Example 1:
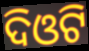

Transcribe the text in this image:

ଦିଓଟି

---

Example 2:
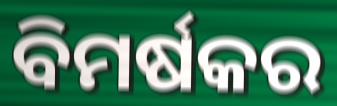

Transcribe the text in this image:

ବିମର୍ଷକର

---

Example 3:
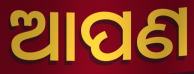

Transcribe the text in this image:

ଆପଣ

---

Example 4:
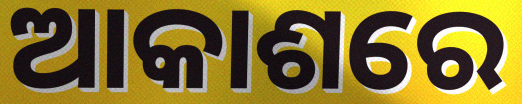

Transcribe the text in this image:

ଆକାଶରେ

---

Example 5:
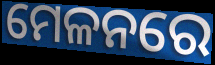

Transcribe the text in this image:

ମେଳନରେ